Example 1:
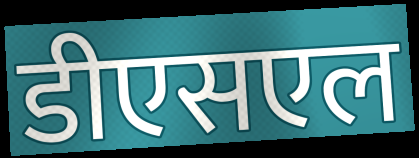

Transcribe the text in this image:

डीएसएल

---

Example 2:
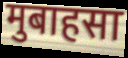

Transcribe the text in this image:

मुबाहसा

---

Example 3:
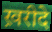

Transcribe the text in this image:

ख़रीदे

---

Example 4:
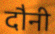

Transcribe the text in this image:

दौनी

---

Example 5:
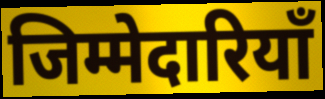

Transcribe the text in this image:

जिम्मेदारियॉं